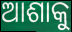
ଆଶାକୁ